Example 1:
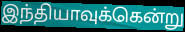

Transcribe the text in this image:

இந்தியாவுக்கென்று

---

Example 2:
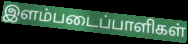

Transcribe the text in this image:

இளம்படைப்பாளிகள்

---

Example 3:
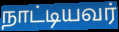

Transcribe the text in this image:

நாட்டியவர்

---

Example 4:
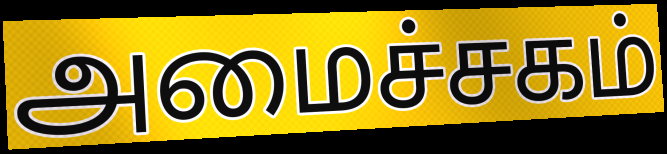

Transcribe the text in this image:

அமைச்சகம்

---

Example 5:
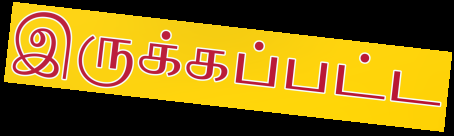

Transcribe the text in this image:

இருக்கப்பட்ட